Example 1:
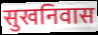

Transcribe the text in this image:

सुखनिवास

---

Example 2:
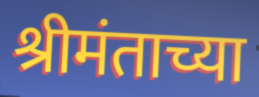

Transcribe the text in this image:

श्रीमंताच्या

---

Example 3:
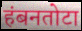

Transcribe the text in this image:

हंबनतोटा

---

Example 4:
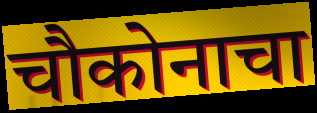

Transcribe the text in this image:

चौकोनाचा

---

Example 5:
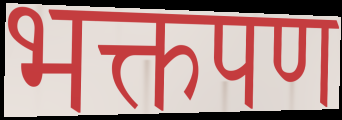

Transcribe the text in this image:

भक्तपण